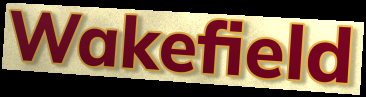
Wakefield